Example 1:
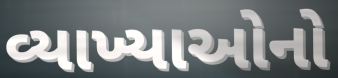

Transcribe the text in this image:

વ્યાખ્યાઓનો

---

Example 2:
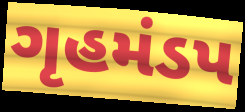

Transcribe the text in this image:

ગૃહમંડપ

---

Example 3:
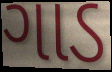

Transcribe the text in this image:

ગાડ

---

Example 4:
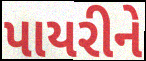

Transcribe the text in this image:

પાયરીને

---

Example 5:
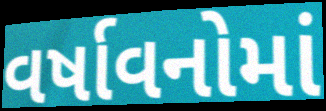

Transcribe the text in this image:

વર્ષાવનોમાં